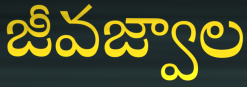
జీవజ్వాల